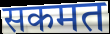
सकमत